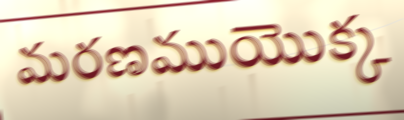
మరణముయొక్క